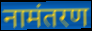
नामंतरण